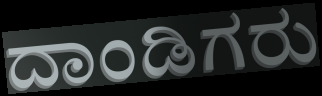
ದಾಂಡಿಗರು